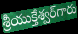
శ్రీయుక్తేశ్వర్‌గారు